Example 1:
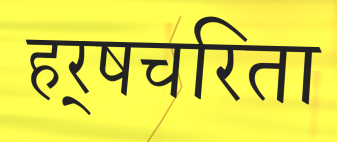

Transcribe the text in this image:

हर्षचरिता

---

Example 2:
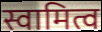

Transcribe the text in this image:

स्वामित्व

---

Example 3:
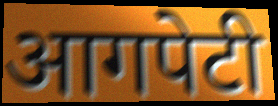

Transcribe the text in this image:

आगपेटी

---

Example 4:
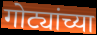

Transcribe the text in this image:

गोट्यांच्या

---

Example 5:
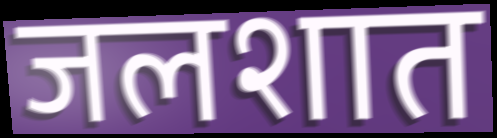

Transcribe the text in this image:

जलशात